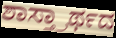
ಶಾಸ್ತ್ರಾರ್ಥದ